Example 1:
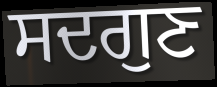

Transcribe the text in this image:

ਸਦਗੁਣ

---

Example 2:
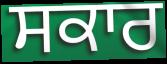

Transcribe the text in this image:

ਸਕਾਰ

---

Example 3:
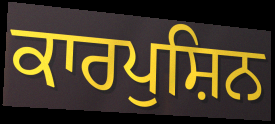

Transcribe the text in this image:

ਕਾਰਪੁਸ਼ਿਨ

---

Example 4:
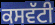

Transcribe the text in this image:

ਕਸਵੱਟੀ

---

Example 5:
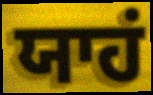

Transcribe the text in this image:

ਯਾਹਂ